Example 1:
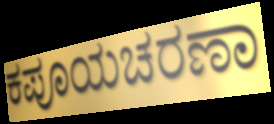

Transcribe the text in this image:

ಕಪೂಯಚರಣಾ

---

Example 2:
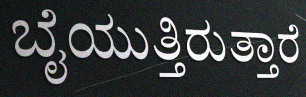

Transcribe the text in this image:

ಬೈಯುತ್ತಿರುತ್ತಾರೆ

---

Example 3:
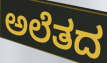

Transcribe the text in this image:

ಅಲೆತದ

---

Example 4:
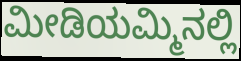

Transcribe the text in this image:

ಮೀಡಿಯಮ್ಮಿನಲ್ಲಿ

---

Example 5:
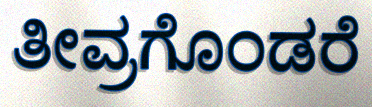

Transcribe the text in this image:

ತೀವ್ರಗೊಂಡರೆ